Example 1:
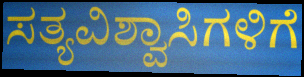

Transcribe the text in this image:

ಸತ್ಯವಿಶ್ವಾಸಿಗಳಿಗೆ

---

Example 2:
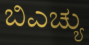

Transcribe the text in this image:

ಬಿಎಚ್ಯು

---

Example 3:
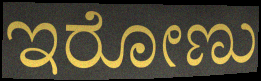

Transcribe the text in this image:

ಇರೋಣು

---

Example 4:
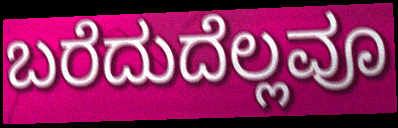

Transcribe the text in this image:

ಬರೆದುದೆಲ್ಲವೂ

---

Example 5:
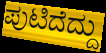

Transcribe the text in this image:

ಪುಟಿದೆದ್ದು